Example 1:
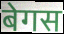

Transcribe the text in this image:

बेगस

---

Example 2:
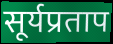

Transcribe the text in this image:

सूर्यप्रताप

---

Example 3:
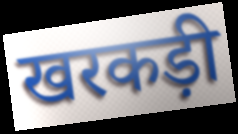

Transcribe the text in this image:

खरकड़ी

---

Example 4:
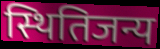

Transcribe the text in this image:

स्थितिजन्य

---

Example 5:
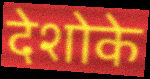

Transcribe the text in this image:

देशोके